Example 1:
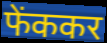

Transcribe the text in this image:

फेंककर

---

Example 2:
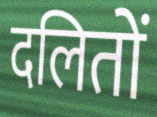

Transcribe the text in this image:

दलितों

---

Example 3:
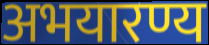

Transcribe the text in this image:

अभयारण्य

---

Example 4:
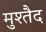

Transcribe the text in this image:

मुश्तैद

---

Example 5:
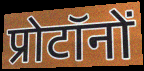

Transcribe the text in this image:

प्रोटॉनों